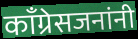
काँग्रेसजनांनी